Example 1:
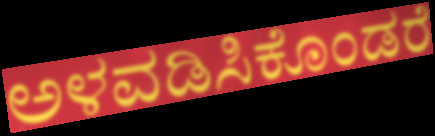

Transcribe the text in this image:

ಅಳವಡಿಸಿಕೊಂಡರೆ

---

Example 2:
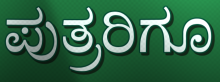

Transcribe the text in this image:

ಪುತ್ರರಿಗೂ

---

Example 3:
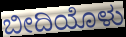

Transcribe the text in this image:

ಬೀದಿಯೊಳು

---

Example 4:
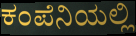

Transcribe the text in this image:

ಕಂಪೆನಿಯಲ್ಲಿ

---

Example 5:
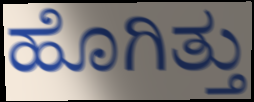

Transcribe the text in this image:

ಹೊಗಿತ್ತು